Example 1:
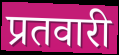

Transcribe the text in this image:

प्रतवारी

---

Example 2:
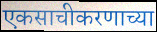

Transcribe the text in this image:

एकसाचीकरणाच्या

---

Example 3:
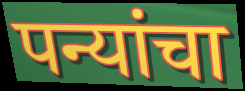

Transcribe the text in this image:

पन्यांचा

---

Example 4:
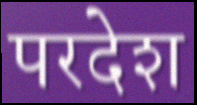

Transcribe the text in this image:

परदेश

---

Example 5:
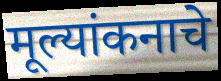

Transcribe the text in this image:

मूल्यांकनाचे